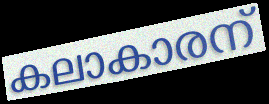
കലാകാരന്